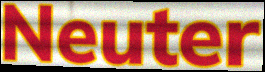
Neuter